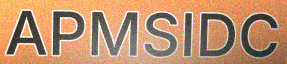
APMSIDC